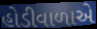
હોડીવાળાએ